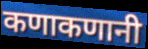
कणाकणानी